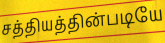
சத்தியத்தின்படியே